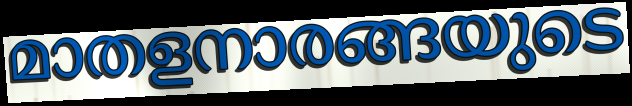
മാതളനാരങ്ങയുടെ